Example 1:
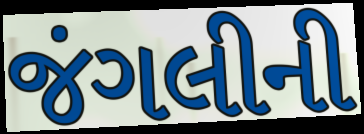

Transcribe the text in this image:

જંગલીની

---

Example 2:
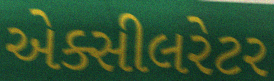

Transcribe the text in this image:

એક્સીલરેટર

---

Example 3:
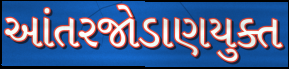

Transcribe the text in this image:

આંતરજોડાણયુક્ત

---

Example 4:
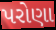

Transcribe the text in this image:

પરોણા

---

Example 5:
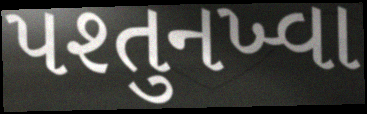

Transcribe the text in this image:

પશ્તુનખ્વા